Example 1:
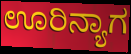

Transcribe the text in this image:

ಊರಿನ್ಯಾಗ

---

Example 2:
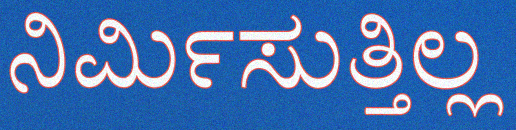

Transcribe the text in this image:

ನಿರ್ಮಿಸುತ್ತಿಲ್ಲ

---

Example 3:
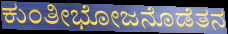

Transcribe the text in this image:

ಕುಂತೀಭೋಜನೊಡೆತನ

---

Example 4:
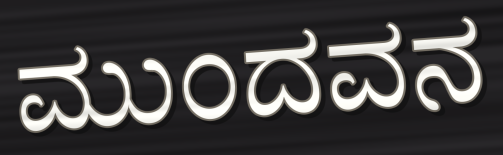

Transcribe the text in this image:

ಮುಂದವನ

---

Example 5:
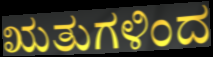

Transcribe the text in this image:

ಋತುಗಳಿಂದ